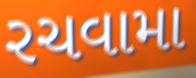
રચવામા